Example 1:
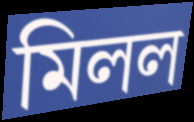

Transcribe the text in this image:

মিলল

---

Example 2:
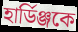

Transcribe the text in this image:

হার্ডিঞ্জকে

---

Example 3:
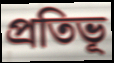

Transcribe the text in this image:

প্রতিভূ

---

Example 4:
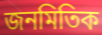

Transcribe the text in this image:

জনমিতিক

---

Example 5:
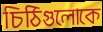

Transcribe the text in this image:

চিঠিগুলোকে